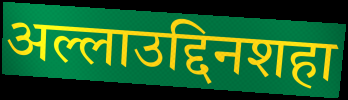
अल्लाउद्दिनशहा